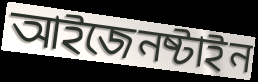
আইজেনষ্টাইন